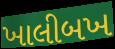
ખાલીબખ